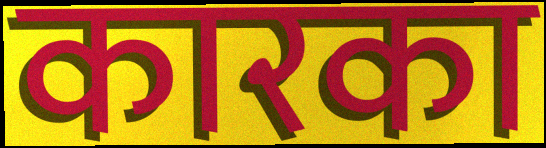
कारका